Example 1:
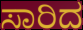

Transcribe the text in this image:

ಸಾರಿದ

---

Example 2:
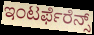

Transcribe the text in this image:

ಇಂಟರ್ಫೆರೆನ್ಸ್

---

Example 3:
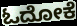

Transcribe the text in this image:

ಓದೋಕೆ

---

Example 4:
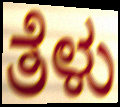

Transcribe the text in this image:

ತೆಳು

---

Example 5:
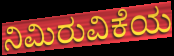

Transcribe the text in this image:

ನಿಮಿರುವಿಕೆಯ